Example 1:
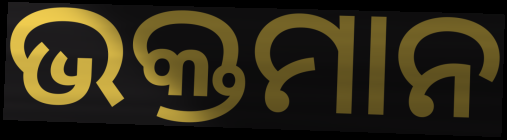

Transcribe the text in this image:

ଭକ୍ତମାନ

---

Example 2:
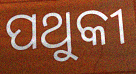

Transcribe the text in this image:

ପଥୁକୀ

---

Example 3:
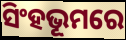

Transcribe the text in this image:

ସିଂହଭୂମରେ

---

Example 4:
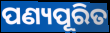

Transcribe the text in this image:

ପଣ୍ୟପୂରିତ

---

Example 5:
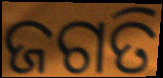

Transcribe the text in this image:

ଜଗତି